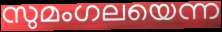
സുമംഗലയെന്ന